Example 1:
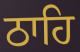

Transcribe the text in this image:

ਠਾਹਿ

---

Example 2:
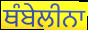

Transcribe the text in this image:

ਥੰਬੇਲੀਨਾ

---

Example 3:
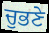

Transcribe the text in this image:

ਚੁਭਣੇ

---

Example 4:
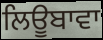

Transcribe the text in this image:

ਲਿਊਬਾਵਾ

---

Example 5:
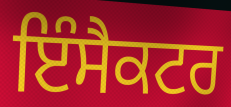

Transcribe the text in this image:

ਇੰਸੈਕਟਰ